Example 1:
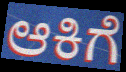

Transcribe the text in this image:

ಆಕಿಗೆ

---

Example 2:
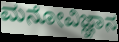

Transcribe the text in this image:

ಮನೋವಿಜ್ಞಾನ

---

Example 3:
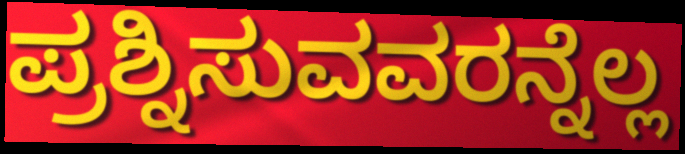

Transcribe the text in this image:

ಪ್ರಶ್ನಿಸುವವರನ್ನೆಲ್ಲ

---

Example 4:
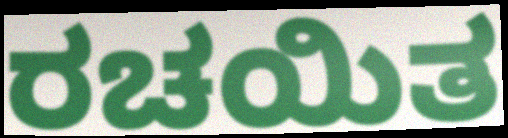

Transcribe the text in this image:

ರಚಯಿತ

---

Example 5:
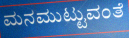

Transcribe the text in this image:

ಮನಮುಟ್ಟುವಂತೆ